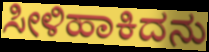
ಸೀಳಿಹಾಕಿದನು